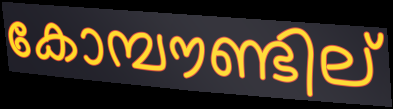
കോമ്പൗണ്ടില്